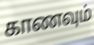
காணவும்